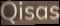
Qisas